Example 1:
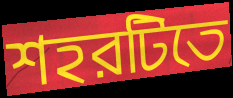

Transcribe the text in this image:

শহরটিতে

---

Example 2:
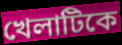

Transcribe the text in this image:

খেলাটিকে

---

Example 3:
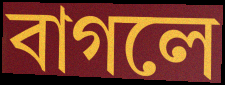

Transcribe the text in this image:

বাগলে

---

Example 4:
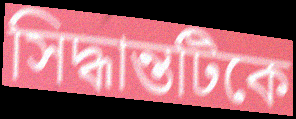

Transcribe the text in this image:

সিদ্ধান্তটিকে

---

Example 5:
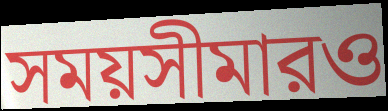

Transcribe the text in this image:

সময়সীমারও